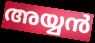
അയ്യൻ